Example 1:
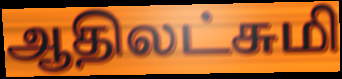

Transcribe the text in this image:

ஆதிலட்சுமி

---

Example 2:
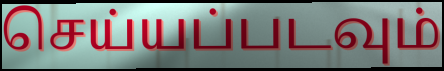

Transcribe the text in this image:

செய்யப்படவும்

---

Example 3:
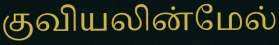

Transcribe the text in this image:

குவியலின்மேல்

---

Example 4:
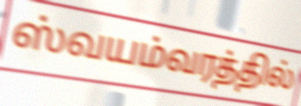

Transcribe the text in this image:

ஸ்வயம்வரத்தில்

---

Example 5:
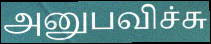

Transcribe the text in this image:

அனுபவிச்சு